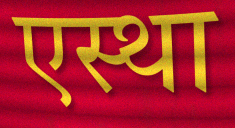
एस्था